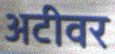
अटीवर